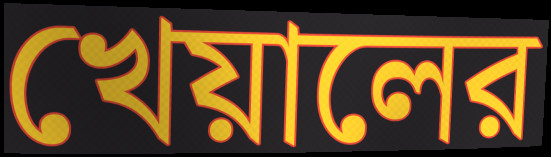
খেয়ালের